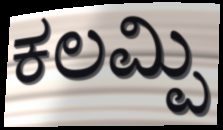
ಕಲಮ್ಪಿ